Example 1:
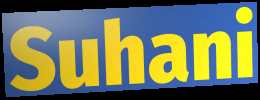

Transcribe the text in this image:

Suhani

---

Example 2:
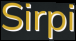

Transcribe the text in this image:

Sirpi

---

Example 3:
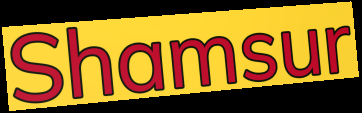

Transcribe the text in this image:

Shamsur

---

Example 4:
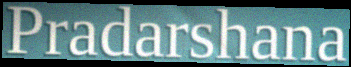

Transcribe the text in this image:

Pradarshana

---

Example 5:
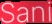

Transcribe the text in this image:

Sani